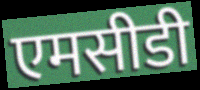
एमसीडी